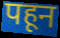
पहून